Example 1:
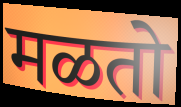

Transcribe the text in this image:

मळतो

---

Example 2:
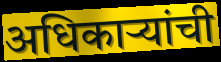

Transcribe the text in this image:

अधिकार्‍यांची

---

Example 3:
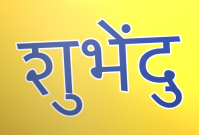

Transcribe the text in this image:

शुभेंदु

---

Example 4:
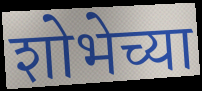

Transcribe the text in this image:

शोभेच्या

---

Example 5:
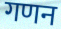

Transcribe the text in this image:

गणन